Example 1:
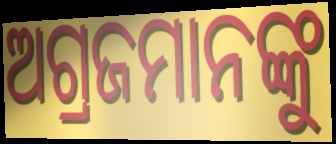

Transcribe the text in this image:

ଅଗ୍ରଜମାନଙ୍କୁ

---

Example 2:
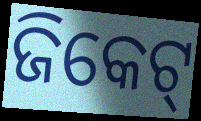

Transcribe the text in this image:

ଜିକେଟ୍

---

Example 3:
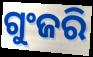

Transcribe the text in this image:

ଗୁଂଜରି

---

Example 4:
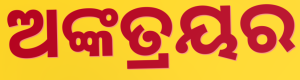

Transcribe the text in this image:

ଅଙ୍କତ୍ରୟର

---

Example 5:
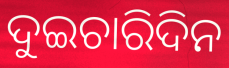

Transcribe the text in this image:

ଦୁଇଚାରିଦିନ